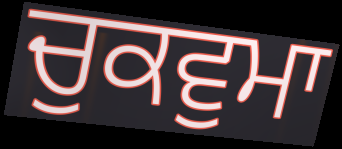
ਚੁਕਵੁਮਾ